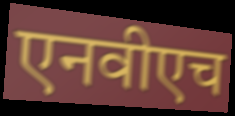
एनवीएच